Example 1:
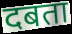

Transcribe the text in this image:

दबता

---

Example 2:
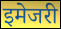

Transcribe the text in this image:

इमेजरी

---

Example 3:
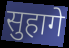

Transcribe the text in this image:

सुहागे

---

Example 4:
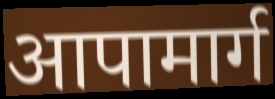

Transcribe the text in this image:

आपामार्ग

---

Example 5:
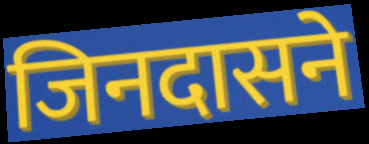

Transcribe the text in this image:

जिनदासने